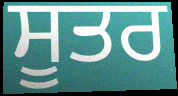
ਸੂਤਰ